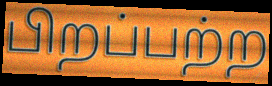
பிறப்பற்ற